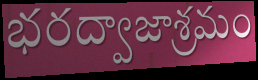
భరద్వాజాశ్రమం